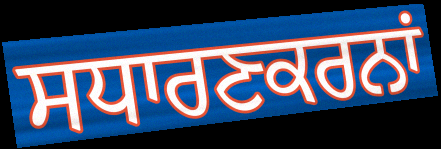
ਸਧਾਰਣਕਰਨਾਂ